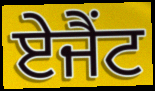
ਏਜੈਂਟ